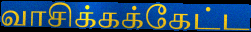
வாசிக்கக்கேட்ட